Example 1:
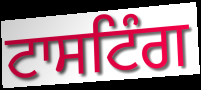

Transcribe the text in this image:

ਟਾਸਟਿੰਗ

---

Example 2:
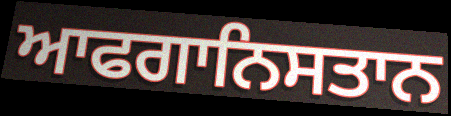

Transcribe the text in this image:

ਆਫਗਾਨਿਸਤਾਨ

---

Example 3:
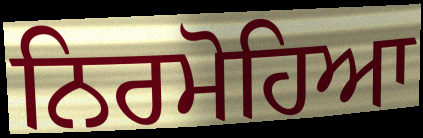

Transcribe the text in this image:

ਨਿਰਮੋਹਿਆ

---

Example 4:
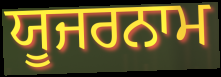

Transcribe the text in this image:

ਯੂਜਰਨਾਮ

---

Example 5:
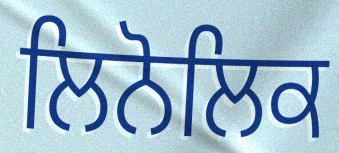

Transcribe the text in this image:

ਲਿਨੋਲਿਕ